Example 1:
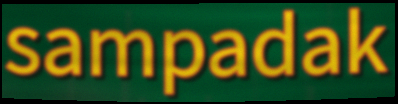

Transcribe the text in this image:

sampadak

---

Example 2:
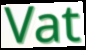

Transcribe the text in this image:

Vat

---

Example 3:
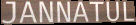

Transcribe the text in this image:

JANNATUL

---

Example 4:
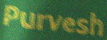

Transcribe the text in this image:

Purvesh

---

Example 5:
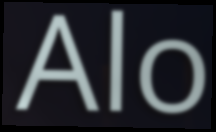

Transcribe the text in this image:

Alo